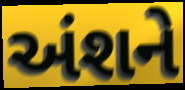
અંશને